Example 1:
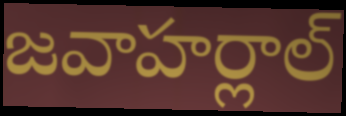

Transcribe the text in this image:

జవాహర్లాల్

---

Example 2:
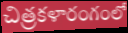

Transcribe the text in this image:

చిత్రకళారంగంలో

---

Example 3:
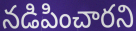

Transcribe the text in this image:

నడిపించారని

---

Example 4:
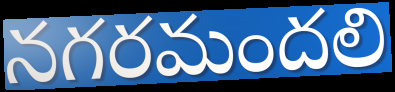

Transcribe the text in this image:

నగరమందలి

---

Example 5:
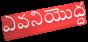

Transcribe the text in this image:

ఎవనియొద్ద